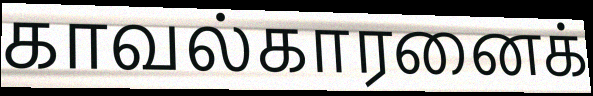
காவல்காரனைக்